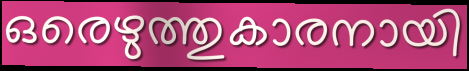
ഒരെഴുത്തുകാരനായി